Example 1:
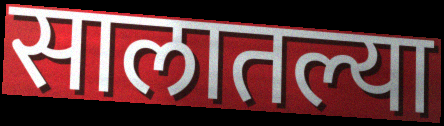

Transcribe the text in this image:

सालातल्या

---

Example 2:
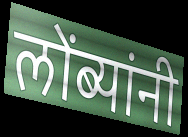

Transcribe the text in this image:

लोंब्यांनी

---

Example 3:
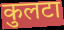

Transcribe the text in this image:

कुलटा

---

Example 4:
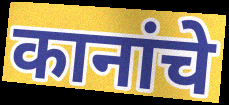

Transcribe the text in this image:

कानांचे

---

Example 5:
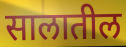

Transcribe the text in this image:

सालातील